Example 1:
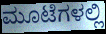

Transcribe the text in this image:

ಮೂಟೆಗಳಲ್ಲಿ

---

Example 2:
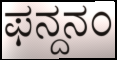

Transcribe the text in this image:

ಫನ್ದನಂ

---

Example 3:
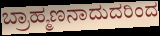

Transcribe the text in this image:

ಬ್ರಾಹ್ಮಣನಾದುದರಿಂದ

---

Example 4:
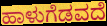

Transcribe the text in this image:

ಹಾಳುಗೆಡವದೆ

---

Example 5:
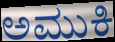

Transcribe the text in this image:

ಅಮುಕಿ